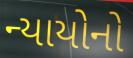
ન્યાયોનો